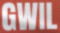
GWIL